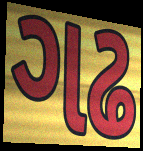
ગઢ